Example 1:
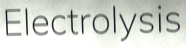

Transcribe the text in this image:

Electrolysis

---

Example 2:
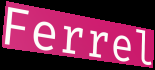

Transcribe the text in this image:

Ferrel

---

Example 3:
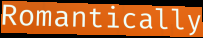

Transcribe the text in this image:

Romantically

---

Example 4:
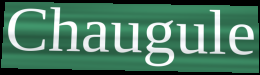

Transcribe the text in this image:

Chaugule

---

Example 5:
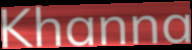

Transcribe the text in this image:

Khanna